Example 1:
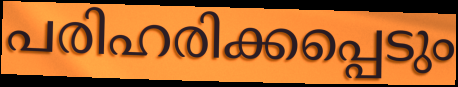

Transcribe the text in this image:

പരിഹരിക്കപ്പെടും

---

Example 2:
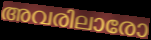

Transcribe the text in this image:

അവരിലാരോ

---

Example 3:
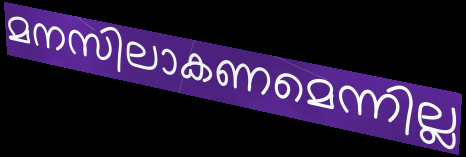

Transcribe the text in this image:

മനസിലാകണമെന്നില്ല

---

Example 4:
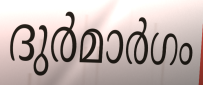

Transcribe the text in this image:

ദുർമാർഗം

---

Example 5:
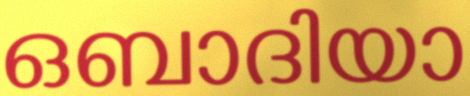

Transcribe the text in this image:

ഒബാദിയാ